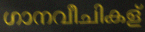
ഗാനവീചികള്